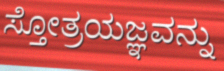
ಸ್ತೋತ್ರಯಜ್ಞವನ್ನು